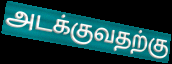
அடக்குவதற்கு